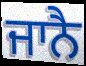
ਜਾਨੈ